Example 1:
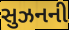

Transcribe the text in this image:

સુઝનની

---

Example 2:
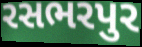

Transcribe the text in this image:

રસભરપુર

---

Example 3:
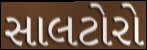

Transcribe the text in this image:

સાલટોરો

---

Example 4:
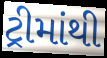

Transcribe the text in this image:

ટ્રીમાંથી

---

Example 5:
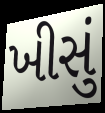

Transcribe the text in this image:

ખીસું